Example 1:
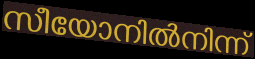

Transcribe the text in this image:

സീയോനിൽനിന്ന്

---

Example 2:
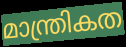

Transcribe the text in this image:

മാന്ത്രികത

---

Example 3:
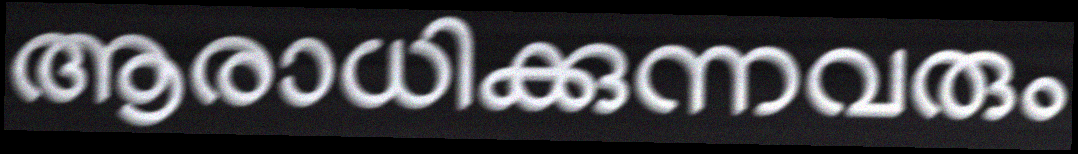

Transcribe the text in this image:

ആരാധിക്കുന്നവരും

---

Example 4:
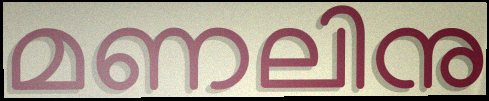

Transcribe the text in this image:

മണലിനു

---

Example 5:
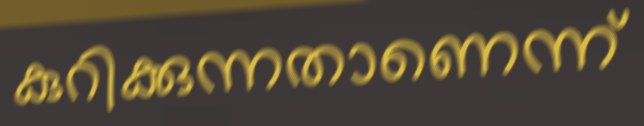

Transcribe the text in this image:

കുറിക്കുന്നതാണെന്ന്